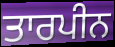
ਤਾਰਪੀਨ